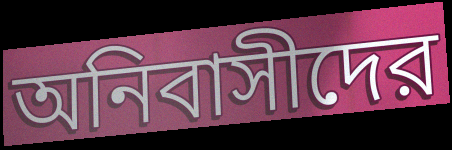
অনিবাসীদের